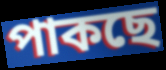
পাকছে